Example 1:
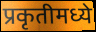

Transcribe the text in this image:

प्रकृतीमध्ये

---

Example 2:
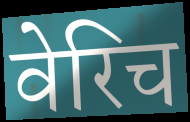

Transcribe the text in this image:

वेरिच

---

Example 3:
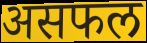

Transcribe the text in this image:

असफल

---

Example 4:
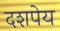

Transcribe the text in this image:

दशपेय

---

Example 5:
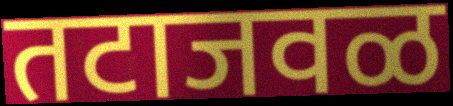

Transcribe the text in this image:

तटाजवळ